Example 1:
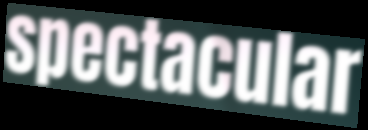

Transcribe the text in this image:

spectacular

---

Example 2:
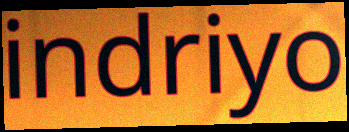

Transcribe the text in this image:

indriyo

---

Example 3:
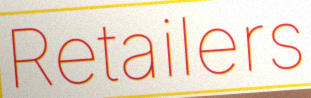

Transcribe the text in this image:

Retailers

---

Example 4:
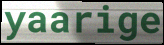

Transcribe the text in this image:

yaarige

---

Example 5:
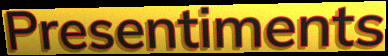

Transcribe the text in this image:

Presentiments